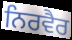
ਨਿਰਵੈਰ